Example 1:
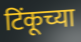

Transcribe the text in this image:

टिंकूच्या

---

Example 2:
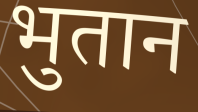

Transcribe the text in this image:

भुतान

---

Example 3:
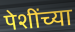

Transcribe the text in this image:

पेशींच्या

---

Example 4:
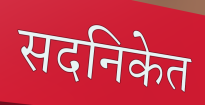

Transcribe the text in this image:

सदनिकेत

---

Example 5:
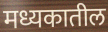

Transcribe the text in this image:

मध्यकातील